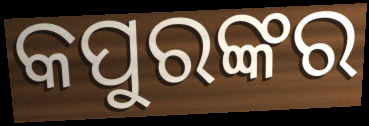
କପୁରଙ୍କର